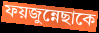
ফয়জুন্নেছাকে